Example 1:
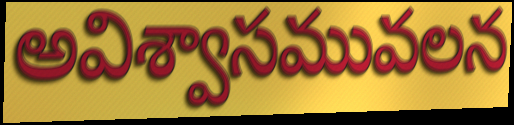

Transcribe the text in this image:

అవిశ్వాసమువలన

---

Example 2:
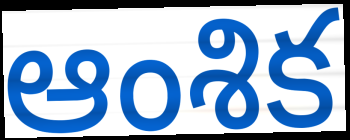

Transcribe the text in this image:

ఆంశిక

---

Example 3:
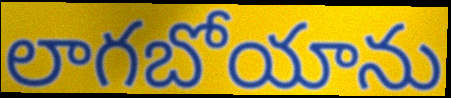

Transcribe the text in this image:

లాగబోయాను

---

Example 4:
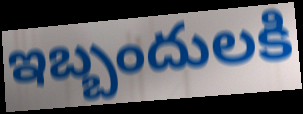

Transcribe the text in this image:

ఇబ్బందులకి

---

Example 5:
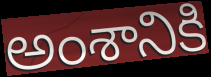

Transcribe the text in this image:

అంశానికి